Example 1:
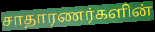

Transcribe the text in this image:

சாதாரணர்களின்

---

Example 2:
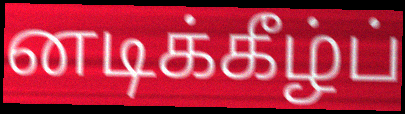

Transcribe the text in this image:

னடிக்கீழ்ப்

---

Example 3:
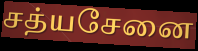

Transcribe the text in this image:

சத்யசேனை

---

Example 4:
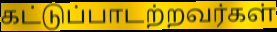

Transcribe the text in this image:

கட்டுப்பாடற்றவர்கள்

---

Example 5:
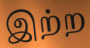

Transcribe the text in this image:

இற்ற